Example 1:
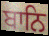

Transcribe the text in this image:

ਬਾਨਿ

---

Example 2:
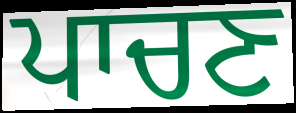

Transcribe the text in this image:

ਪਾਚਣ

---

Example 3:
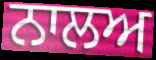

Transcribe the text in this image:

ਨਾਲਅ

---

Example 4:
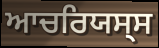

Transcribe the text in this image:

ਆਚਰਿਯਸ੍ਸ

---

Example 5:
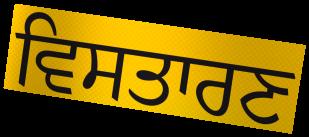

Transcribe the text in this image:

ਵਿਸਤਾਰਣ